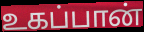
உகப்பான்